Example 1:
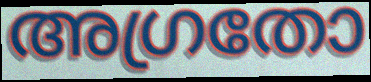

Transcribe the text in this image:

അഗ്രതോ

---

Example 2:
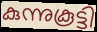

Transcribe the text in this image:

കുന്നുകൂട്ടി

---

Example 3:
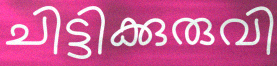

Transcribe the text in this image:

ചിട്ടിക്കുരുവി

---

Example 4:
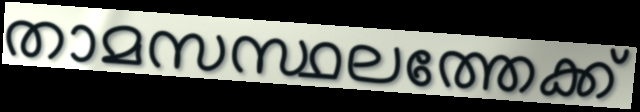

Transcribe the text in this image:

താമസസ്ഥലത്തേക്ക്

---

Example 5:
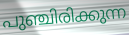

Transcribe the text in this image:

പുഞ്ചിരിക്കുന്ന